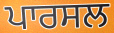
ਪਾਰਸਲ